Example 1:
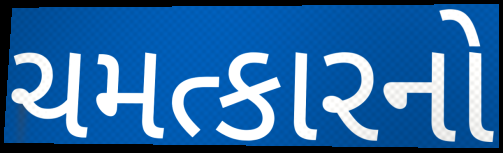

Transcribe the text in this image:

ચમત્કારનો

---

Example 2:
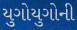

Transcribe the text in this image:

યુગોયુગોની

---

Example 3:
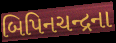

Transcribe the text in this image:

બિપિનચન્દ્રના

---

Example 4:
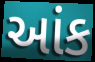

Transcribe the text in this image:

આંક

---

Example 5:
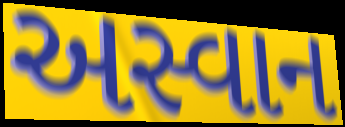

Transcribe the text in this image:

અસ્વાન